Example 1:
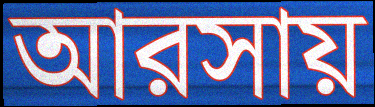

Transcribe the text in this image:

আরসায়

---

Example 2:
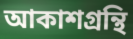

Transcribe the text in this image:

আকাশগ্রন্থি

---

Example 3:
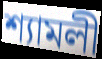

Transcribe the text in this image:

শ্যামলী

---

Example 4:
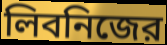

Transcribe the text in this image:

লিবনিজের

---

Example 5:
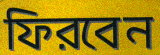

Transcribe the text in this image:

ফিরবেন